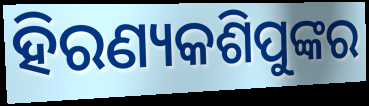
ହିରଣ୍ୟକଶିପୁଙ୍କର